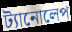
ট্যানোলেপ